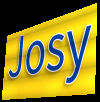
Josy